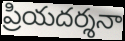
ప్రియదర్శనా